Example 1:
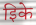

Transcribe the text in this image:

इिके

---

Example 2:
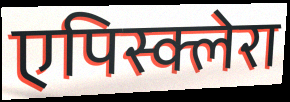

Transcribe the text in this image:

एपिस्क्लेरा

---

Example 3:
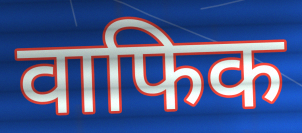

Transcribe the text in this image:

वाफिक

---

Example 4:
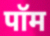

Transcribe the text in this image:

पॉम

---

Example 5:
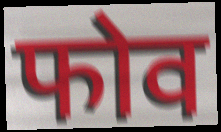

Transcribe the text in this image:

फोव